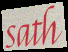
sath